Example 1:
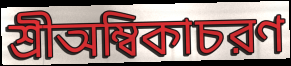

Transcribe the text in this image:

শ্রীঅম্বিকাচরণ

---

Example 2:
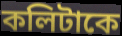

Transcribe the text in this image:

কলিটাকে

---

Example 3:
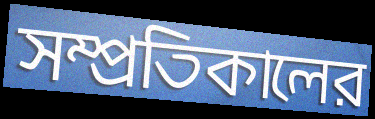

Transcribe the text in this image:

সম্প্রতিকালের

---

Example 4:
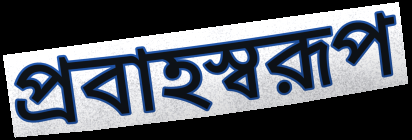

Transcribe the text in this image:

প্রবাহস্বরূপ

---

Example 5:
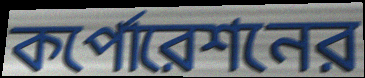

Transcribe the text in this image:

কর্পোরেশনের